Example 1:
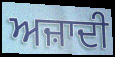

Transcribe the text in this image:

ਅਜ਼ਾਦੀ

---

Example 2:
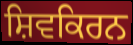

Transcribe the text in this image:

ਸ਼ਿਵਕਿਰਨ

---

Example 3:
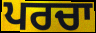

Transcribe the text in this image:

ਪਰਚਾ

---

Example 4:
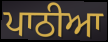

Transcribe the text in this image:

ਪਾਠੀਆ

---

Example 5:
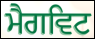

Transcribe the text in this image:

ਮੈਗਵਿਟ